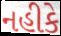
નહીકે